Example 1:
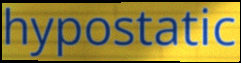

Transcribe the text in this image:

hypostatic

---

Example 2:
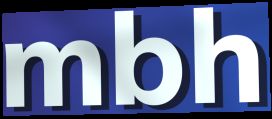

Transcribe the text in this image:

mbh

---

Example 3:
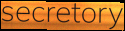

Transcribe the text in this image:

secretory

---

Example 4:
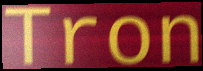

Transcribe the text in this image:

Tron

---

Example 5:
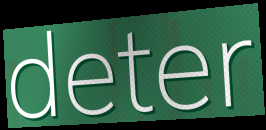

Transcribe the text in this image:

deter